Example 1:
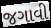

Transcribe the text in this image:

જગાવી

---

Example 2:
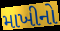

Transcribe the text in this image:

માખીનો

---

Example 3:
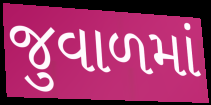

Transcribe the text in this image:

જુવાળમાં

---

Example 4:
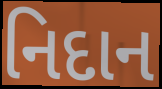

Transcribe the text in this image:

નિદાન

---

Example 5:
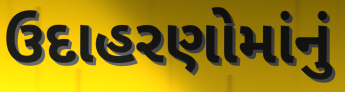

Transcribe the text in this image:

ઉદાહરણોમાંનું